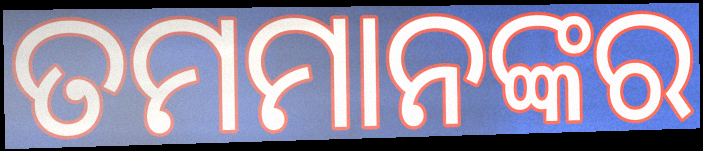
ତମମାନଙ୍କର